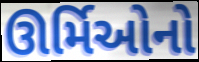
ઊર્મિઓનો